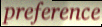
preference